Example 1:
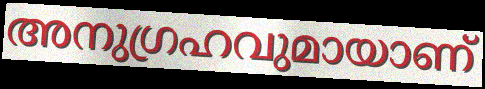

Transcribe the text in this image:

അനുഗ്രഹവുമായാണ്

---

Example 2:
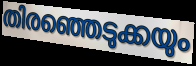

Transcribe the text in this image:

തിരഞ്ഞെടുക്കയും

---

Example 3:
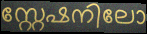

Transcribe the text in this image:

സ്റ്റേഷനിലോ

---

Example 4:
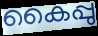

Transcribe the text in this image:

കൈപ്പു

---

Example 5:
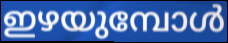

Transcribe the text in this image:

ഇഴയുമ്പോൾ